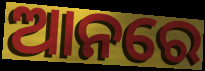
ଆନରେ